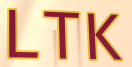
LTK